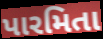
પારમિતા